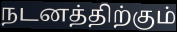
நடனத்திற்கும்